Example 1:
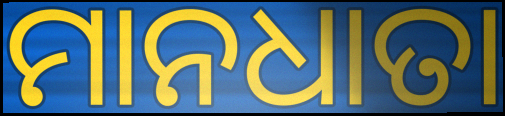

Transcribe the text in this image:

ମାନଧାତା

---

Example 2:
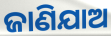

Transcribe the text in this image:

ଜାଣିଯାଅ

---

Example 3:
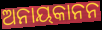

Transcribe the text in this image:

ଅନାୟକାନନ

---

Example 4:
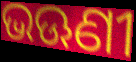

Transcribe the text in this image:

ଭଊଣୀ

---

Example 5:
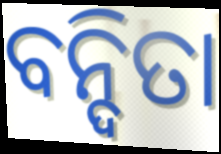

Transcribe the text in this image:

ବନ୍ଦିତା